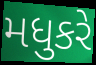
મધુકરે